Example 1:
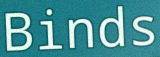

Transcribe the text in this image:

Binds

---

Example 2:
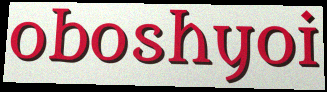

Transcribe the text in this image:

oboshyoi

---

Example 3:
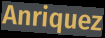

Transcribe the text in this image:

Anriquez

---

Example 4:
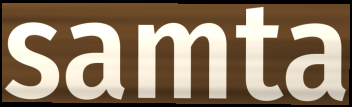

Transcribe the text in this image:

samta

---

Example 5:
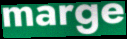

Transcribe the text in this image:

marge